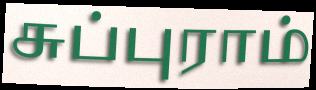
சுப்புராம்